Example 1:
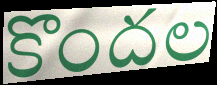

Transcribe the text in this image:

కొందల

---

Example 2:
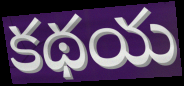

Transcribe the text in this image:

కథయ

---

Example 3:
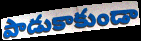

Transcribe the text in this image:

పాడుకాకుండా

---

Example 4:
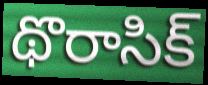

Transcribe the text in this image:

థొరాసిక్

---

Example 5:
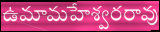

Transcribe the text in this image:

ఉమామహేశ్వరరావు